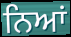
ਨਿਆਂ